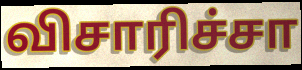
விசாரிச்சா